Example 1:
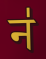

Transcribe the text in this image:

न॑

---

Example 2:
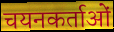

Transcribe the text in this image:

चयनकर्ताओं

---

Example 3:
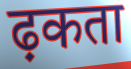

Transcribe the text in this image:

ढ़कता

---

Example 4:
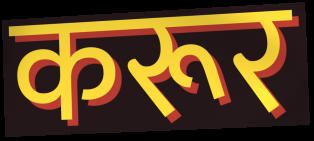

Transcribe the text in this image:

करूर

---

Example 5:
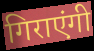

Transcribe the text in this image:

गिराएंगी